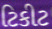
ટિકીટ